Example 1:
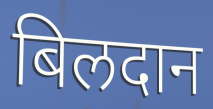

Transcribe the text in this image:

बिलदान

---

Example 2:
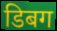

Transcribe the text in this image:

डिबग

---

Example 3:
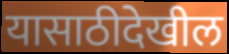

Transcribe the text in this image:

यासाठीदेखील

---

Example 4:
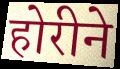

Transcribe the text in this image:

होरीने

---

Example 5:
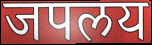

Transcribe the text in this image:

जपलय